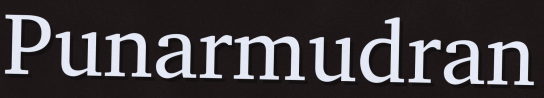
Punarmudran